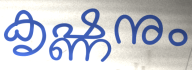
കൃഷ്ണനും